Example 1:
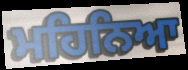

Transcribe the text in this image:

ਮਹਿਨਿਆ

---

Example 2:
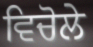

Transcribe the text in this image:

ਵਿਚੋਲੇ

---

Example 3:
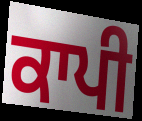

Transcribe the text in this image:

ਕਾਪੀ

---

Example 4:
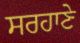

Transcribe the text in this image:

ਸਰਹਾਣੇ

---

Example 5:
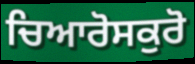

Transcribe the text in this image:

ਚਿਆਰੋਸਕੁਰੋ